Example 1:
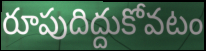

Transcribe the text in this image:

రూపుదిద్దుకోవటం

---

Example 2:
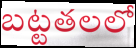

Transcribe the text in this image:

బట్టతలలో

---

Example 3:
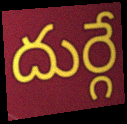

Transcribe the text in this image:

దుర్గే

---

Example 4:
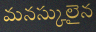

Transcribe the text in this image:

మనస్కులైన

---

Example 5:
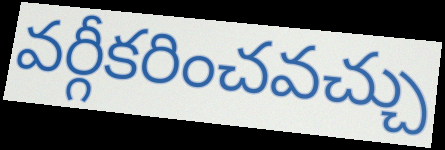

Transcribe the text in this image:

వర్గీకరించవచ్చు